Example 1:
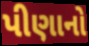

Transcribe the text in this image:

પીણાનો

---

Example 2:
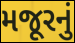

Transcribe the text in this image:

મજૂરનું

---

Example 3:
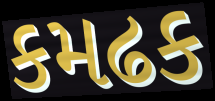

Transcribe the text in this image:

કમઢક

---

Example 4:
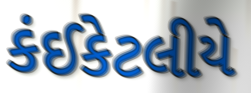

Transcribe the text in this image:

કંઈકેટલીયે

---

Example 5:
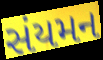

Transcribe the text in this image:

સંયમન